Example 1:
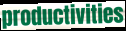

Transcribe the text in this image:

productivities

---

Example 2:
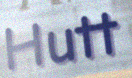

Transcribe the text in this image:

Hutt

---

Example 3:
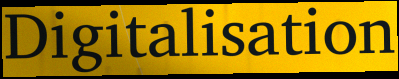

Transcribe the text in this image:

Digitalisation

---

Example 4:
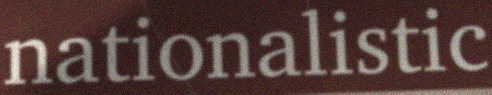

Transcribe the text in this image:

nationalistic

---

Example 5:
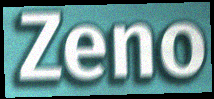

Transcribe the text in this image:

Zeno